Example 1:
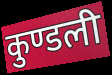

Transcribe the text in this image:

कुण्डली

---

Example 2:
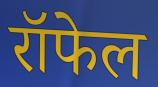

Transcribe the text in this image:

रॉफेल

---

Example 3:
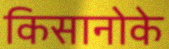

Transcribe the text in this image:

किसानोके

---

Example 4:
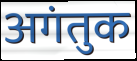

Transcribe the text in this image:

अगंतुक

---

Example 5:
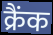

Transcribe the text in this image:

क्रैंक